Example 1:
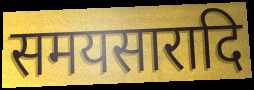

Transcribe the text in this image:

समयसारादि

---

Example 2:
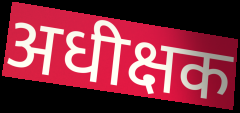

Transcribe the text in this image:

अधीक्षक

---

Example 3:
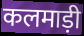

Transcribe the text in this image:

कलमाड़ी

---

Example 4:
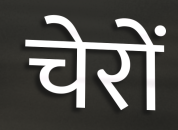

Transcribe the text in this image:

चेरों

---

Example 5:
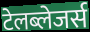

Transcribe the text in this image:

टेलब्लेजर्स